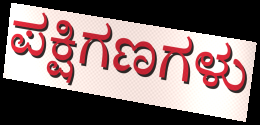
ಪಕ್ಷಿಗಣಗಳು